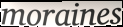
moraines